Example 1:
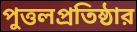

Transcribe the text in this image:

পুত্তলপ্রতিষ্ঠার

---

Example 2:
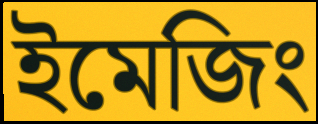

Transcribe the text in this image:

ইমেজিং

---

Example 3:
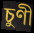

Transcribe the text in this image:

চুণী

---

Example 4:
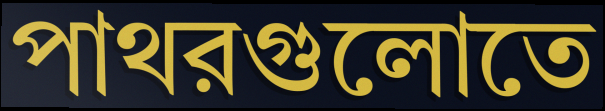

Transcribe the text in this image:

পাথরগুলোতে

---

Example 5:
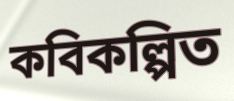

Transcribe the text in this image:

কবিকল্পিত